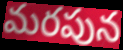
మరపున